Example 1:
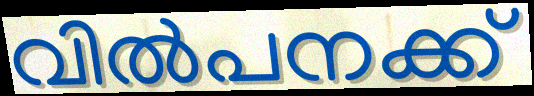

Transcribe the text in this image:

വിൽപനക്ക്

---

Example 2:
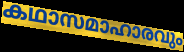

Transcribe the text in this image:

കഥാസമാഹാരവും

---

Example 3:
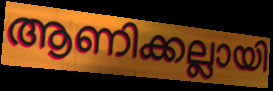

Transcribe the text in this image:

ആണിക്കല്ലായി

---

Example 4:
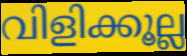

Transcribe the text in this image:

വിളിക്കൂല്ല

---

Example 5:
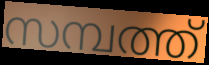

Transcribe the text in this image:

സമ്പത്ത്